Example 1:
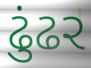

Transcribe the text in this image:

ઢુંઢર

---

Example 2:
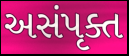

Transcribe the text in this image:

અસંપૃક્ત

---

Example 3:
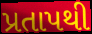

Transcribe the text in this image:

પ્રતાપથી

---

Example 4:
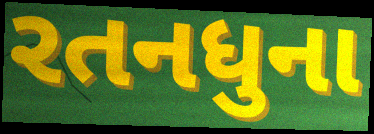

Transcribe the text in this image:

રતનધુના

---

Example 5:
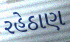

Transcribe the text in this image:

રહેઠાણ